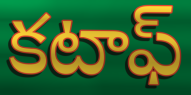
కటాఫ్